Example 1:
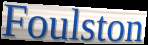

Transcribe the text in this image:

Foulston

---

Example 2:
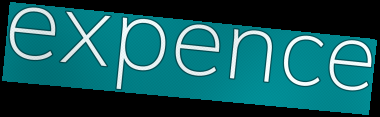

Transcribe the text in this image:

expence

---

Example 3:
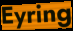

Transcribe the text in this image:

Eyring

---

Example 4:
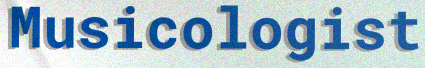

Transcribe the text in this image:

Musicologist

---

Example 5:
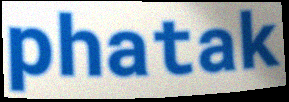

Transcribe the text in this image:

phatak